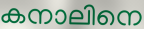
കനാലിനെ